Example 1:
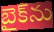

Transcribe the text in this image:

బైక్‌ను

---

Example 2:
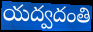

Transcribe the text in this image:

యద్వదంతి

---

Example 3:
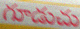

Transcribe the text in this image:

గూడుచు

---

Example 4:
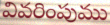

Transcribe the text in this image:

వివరింపుము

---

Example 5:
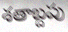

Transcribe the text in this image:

శతాబ్దపు